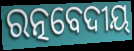
ରତ୍ନବେଦୀୟ